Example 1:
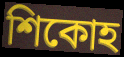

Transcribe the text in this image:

শিকোহ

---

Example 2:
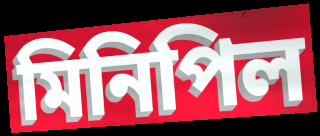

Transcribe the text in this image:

মিনিপিল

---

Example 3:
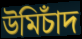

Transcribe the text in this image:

উমিচাঁদ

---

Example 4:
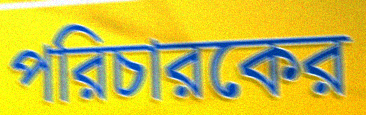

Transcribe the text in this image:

পরিচারকের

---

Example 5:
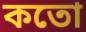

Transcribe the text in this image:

কতো